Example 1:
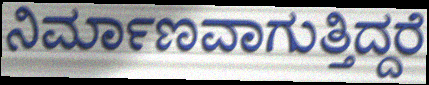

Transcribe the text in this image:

ನಿರ್ಮಾಣವಾಗುತ್ತಿದ್ದರೆ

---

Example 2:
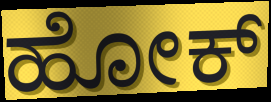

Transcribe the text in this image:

ಹೋಕ್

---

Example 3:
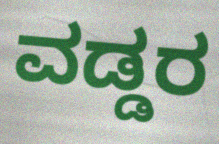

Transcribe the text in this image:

ವಡ್ಡರ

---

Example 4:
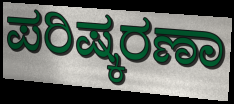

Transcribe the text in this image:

ಪರಿಷ್ಕರಣಾ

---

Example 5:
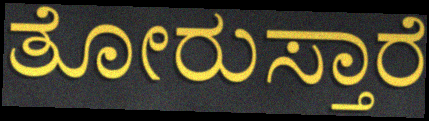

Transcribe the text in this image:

ತೋರುಸ್ತಾರೆ